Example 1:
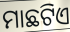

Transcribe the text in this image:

ମାଛଟିଏ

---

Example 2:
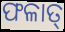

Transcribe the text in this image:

ଫଳାତ୍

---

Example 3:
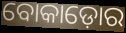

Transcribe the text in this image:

ବୋକାଡ଼ୋର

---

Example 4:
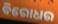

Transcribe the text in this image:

ବିରୋଧର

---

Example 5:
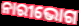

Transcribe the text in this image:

ନାରୀଭୋଗ